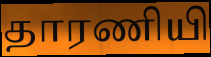
தாரணியி